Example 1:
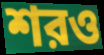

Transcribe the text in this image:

শরও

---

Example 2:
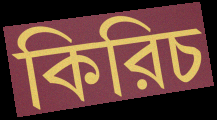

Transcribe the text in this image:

কিরিচ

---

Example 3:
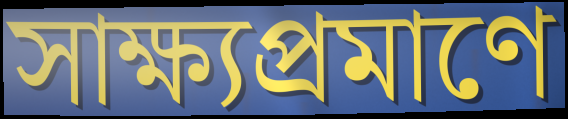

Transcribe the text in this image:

সাক্ষ্যপ্রমাণে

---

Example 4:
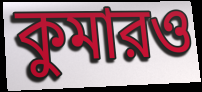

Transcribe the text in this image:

কুমারও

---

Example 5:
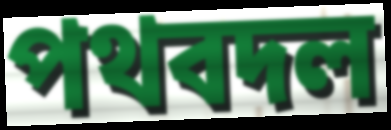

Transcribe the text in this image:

পথবদল